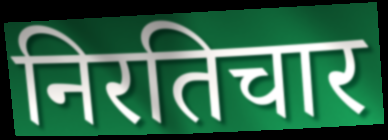
निरतिचार